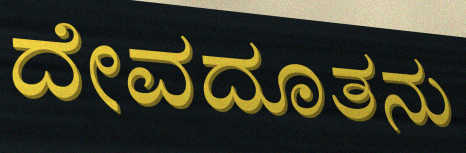
ದೇವದೂತನು